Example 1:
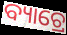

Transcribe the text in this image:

ବ୍ୟାଚ୍ରେ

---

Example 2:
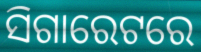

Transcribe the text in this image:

ସିଗାରେଟରେ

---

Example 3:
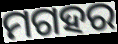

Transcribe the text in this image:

ମଗହର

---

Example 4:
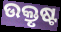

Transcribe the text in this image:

ଉକ୍ତୃଷ୍ଟ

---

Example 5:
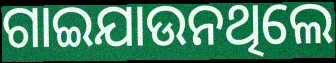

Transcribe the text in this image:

ଗାଇଯାଉନଥିଲେ